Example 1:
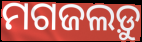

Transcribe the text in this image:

ମଗଜଲଡ଼ୁ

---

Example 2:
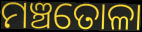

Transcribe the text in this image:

ମଞ୍ଚତୋଳା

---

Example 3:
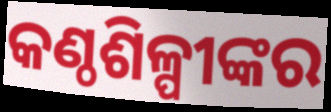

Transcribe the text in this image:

କଣ୍ଠଶିଳ୍ପୀଙ୍କର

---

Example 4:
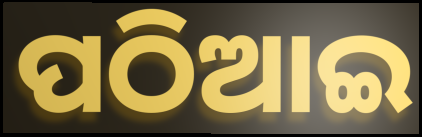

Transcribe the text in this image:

ପଠିଆଇ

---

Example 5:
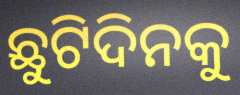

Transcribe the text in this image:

ଛୁଟିଦିନକୁ